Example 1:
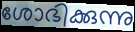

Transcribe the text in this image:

ശോഭിക്കുന്നു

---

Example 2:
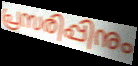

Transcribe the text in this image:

പ്രസരിപ്പിനും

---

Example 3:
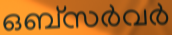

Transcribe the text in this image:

ഒബ്സർവർ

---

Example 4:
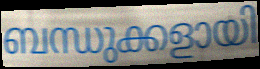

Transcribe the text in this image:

ബന്ധുക്കളായി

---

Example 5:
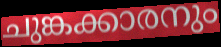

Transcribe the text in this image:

ചുങ്കക്കാരനും